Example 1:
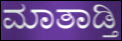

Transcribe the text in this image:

ಮಾತಾಡ್ತಿ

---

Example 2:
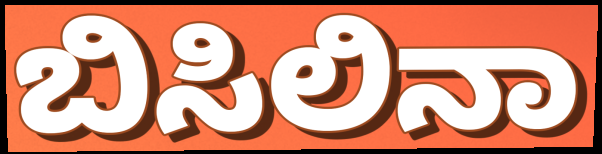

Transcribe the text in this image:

ಬಿಸಿಲಿನಾ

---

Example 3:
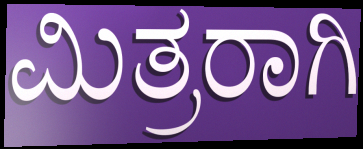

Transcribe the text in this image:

ಮಿತ್ರರಾಗಿ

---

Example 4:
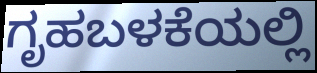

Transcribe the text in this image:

ಗೃಹಬಳಕೆಯಲ್ಲಿ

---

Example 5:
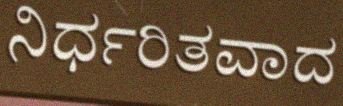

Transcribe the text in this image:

ನಿರ್ಧರಿತವಾದ